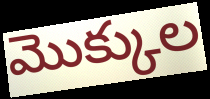
మొక్కుల